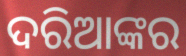
ଦରିଆଙ୍କର